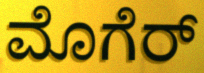
ಮೊಗೆರ್